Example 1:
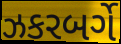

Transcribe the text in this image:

ઝકરબર્ગે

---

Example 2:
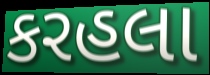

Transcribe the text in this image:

કરહલા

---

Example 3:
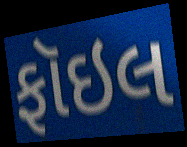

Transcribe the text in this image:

ફૉઇલ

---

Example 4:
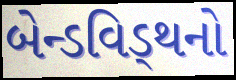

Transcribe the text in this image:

બેન્ડવિડ્થનો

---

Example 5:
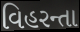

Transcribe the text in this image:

વિહરન્તા